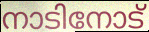
നാടിനോട്